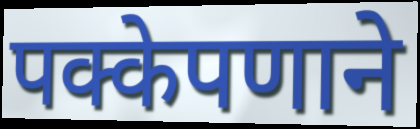
पक्केपणाने